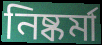
নিষ্কর্মা